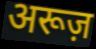
अरूज़